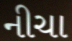
નીચા